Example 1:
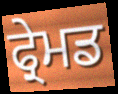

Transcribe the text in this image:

ਫ੍ਰੇਮਡ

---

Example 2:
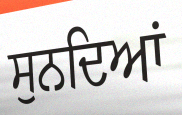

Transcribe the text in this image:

ਸੁਨਦਿਆਂ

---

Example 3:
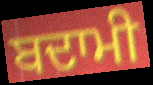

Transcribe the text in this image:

ਬਦਾਮੀ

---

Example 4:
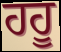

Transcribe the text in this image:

ਹਹੂ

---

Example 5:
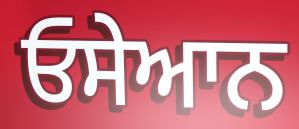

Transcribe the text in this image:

ਓਸੇਆਨ